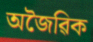
অজৈৱিক